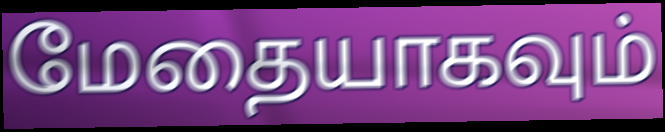
மேதையாகவும்